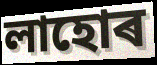
লাহোৰ